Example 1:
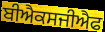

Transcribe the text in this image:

ਬੀਐਕਸਜੀਐਫ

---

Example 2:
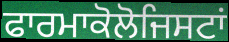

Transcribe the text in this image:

ਫਾਰਮਾਕੋਲੋਜਿਸਟਾਂ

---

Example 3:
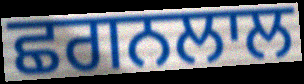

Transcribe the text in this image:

ਛਗਨਲਾਲ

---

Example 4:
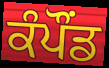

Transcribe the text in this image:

ਕੰਪੌਂਡ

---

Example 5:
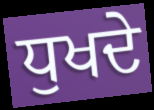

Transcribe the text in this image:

ਧੁਖਦੇ